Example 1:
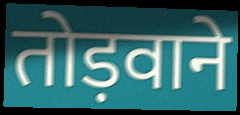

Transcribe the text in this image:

तोड़वाने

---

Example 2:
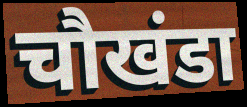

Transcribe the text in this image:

चौखंडा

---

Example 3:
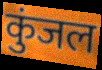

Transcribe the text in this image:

कुंजल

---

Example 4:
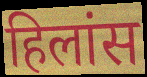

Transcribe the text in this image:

हिलांस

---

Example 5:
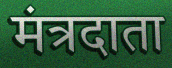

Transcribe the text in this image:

मंत्रदाता